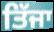
ਤਿੱਜਾ